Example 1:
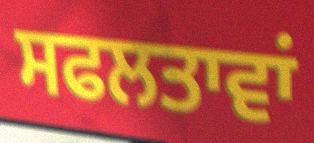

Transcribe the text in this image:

ਸਫਲਤਾਵਾਂ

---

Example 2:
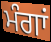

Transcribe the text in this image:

ਮੰਗਾਂ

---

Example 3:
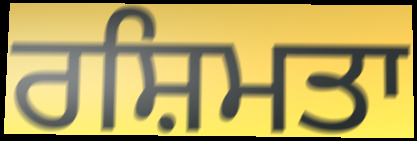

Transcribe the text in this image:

ਰਸ਼ਿਮਤਾ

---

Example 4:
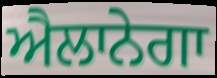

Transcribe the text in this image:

ਐਲਾਨੇਗਾ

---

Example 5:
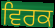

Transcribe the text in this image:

ਵਿਰਕ